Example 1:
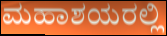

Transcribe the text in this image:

ಮಹಾಶಯರಲ್ಲಿ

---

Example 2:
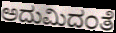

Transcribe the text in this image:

ಅದುಮಿದಂತೆ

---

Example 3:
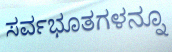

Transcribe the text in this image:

ಸರ್ವಭೂತಗಳನ್ನೂ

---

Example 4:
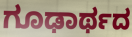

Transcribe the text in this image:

ಗೂಢಾರ್ಥದ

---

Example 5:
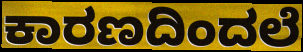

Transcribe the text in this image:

ಕಾರಣದಿಂದಲೆ